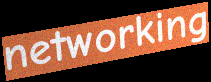
networking